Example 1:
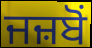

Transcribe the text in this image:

ਜਜ਼ਬੋਂ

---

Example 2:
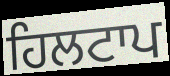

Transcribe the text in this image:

ਹਿਲਟਾਪ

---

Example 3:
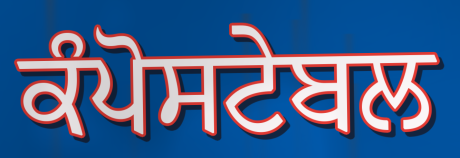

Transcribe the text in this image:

ਕੰਪੋਸਟੇਬਲ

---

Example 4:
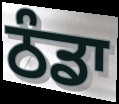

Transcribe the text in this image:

ਠੰਡਾ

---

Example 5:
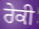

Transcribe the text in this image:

ਰੇਕੀ